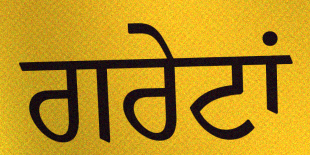
ਗਰੇਟਾਂ